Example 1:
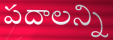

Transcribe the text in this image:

పదాలన్ని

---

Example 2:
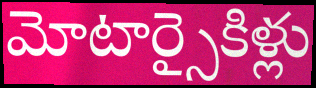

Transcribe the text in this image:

మోటార్సైకిళ్లు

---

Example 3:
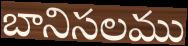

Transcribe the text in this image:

బానిసలము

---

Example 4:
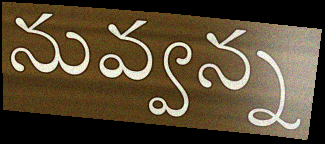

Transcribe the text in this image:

నువ్వన్న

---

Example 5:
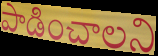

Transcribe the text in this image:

పాడించాలని